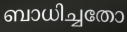
ബാധിച്ചതോ